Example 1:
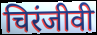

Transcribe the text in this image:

चिरंजीवी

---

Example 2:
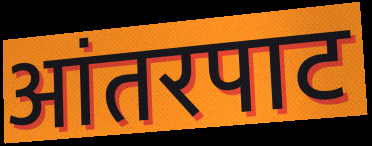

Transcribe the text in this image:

आंतरपाट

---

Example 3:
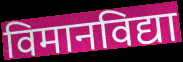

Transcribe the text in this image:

विमानविद्या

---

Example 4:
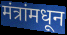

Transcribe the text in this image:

मंत्रांमधून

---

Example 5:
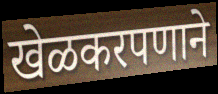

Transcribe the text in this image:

खेळकरपणाने